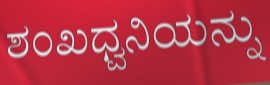
ಶಂಖಧ್ವನಿಯನ್ನು